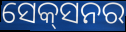
ସେକ୍‌ସନର